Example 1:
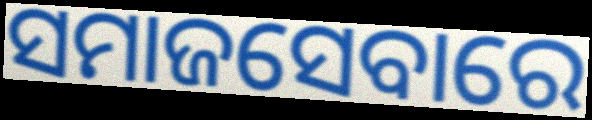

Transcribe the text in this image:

ସମାଜସେବାରେ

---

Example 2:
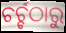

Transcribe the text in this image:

ଚର୍ଚ୍ଚଠାରୁ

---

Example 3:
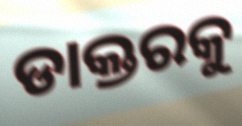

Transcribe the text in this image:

ଡାକ୍ତରକୁ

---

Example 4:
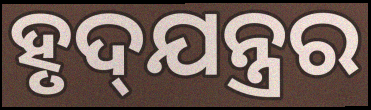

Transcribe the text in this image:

ହୃଦ୍‍ଯନ୍ତ୍ରର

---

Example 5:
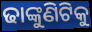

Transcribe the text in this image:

ଢାଙ୍କୁଣିଟିକୁ